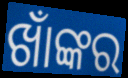
ଖାଁଙ୍କର